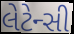
લેટેન્સી